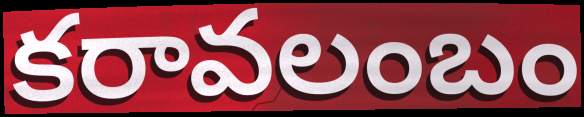
కరావలంబం